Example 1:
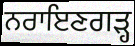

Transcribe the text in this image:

ਨਰਾਇਣਗੜ੍ਹ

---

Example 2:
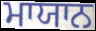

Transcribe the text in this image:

ਮਾਯਾਨ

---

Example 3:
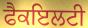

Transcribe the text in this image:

ਫੈਕਇਲਟੀ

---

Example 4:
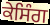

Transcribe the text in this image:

ਕੇਸਿੰਗ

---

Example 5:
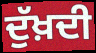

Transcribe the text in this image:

ਦੁੱਖ਼ਦੀ